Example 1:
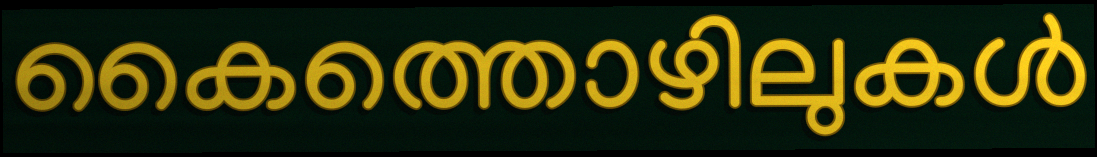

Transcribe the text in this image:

കൈത്തൊഴിലുകൾ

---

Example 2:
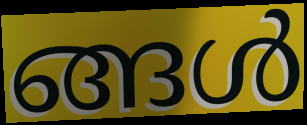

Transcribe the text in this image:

ങ്ങൾ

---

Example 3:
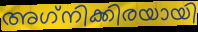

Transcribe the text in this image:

അഗ്‌നിക്കിരയായി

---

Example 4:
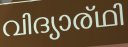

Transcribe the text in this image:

വിദ്യാര്ഥി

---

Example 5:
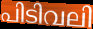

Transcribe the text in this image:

പിടിവലി